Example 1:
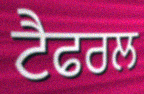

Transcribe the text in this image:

ਟੈਫਰਲ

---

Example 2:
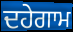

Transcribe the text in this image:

ਦਹੇਗਾਮ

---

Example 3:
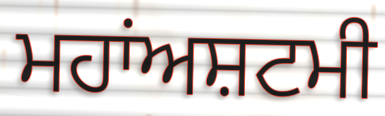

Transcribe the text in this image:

ਮਹਾਂਅਸ਼ਟਮੀ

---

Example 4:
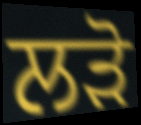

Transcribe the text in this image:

ਲੜੋ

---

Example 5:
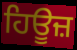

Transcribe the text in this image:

ਹਿਊਜ਼